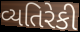
વ્યતિરેકી